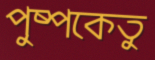
পুষ্পকেতু